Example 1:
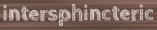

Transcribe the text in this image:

intersphincteric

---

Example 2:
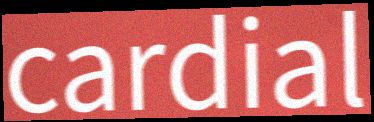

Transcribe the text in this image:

cardial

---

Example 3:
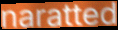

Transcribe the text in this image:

naratted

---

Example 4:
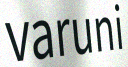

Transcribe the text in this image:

varuni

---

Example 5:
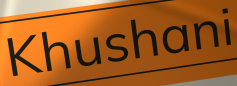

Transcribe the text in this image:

Khushani